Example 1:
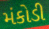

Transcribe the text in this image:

મંકોડી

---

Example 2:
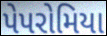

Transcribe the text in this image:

પેપરોમિયા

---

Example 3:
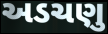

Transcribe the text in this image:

અડચણુ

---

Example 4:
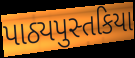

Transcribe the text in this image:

પાઠ્યપુસ્તકિયા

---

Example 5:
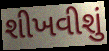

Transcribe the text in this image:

શીખવીશું